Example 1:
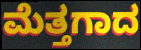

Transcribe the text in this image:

ಮೆತ್ತಗಾದ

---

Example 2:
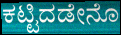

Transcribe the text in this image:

ಕಟ್ಟಿದಡೇನೊ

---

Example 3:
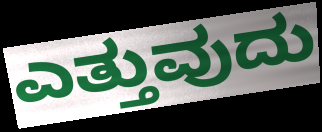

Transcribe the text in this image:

ಎತ್ತುವುದು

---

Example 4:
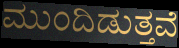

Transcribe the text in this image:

ಮುಂದಿಡುತ್ತವೆ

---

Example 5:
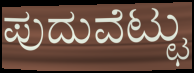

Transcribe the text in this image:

ಪುದುವೆಟ್ಟು